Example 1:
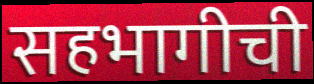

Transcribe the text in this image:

सहभागीची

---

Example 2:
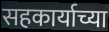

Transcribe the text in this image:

सहकार्याच्या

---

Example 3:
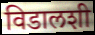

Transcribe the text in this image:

विडालशी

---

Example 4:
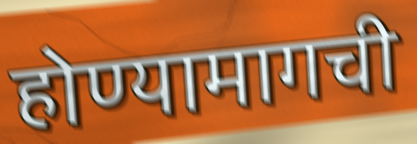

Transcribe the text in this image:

होण्यामागची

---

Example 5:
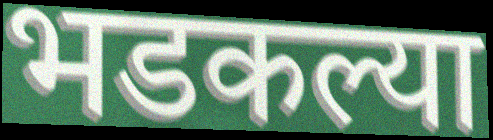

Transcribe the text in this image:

भडकल्या